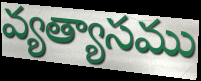
వ్యత్యాసము